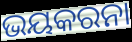
ଭୟକରନା